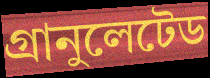
গ্রানুলেটেড